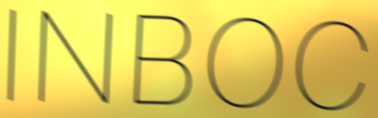
INBOC